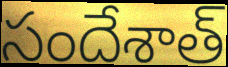
సందేశాత్